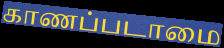
காணப்படாமை